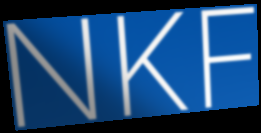
NKF